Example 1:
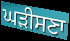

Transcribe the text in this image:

ਘੜੀਸਣਾ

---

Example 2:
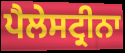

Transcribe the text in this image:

ਪੈਲੇਸਟ੍ਰੀਨਾ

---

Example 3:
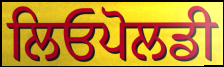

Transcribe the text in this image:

ਲਿਓਪੋਲਡੀ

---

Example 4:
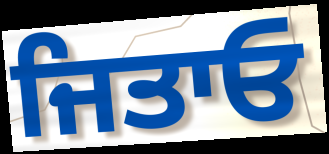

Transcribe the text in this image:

ਜਿਤਾਓ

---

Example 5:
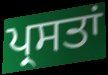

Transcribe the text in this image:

ਪ੍ਰਸਤਾਂ